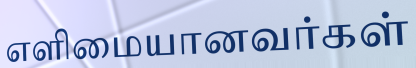
எளிமையானவர்கள்